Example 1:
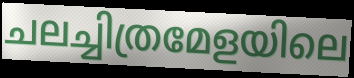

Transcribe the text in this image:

ചലച്ചിത്രമേളയിലെ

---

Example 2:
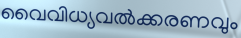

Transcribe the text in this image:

വൈവിധ്യവൽക്കരണവും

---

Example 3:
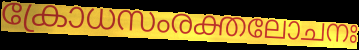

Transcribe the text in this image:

ക്രോധസംരക്തലോചനഃ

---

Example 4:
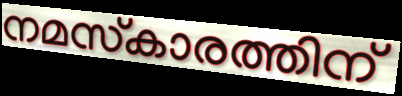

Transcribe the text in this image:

നമസ്‌കാരത്തിന്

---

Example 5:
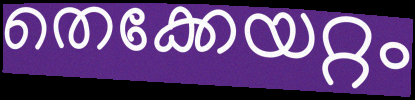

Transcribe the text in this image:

തെക്കേയറ്റം